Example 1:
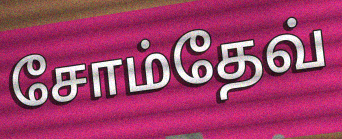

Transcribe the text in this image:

சோம்தேவ்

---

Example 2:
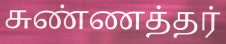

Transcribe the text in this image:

சுண்ணத்தர்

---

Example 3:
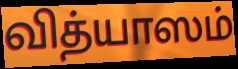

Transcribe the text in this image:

வித்யாஸம்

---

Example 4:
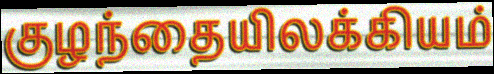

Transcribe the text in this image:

குழந்தையிலக்கியம்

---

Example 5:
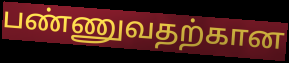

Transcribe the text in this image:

பண்ணுவதற்கான